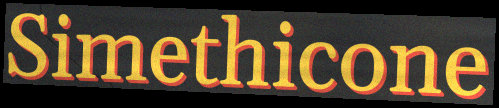
Simethicone